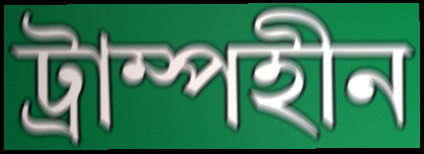
ট্রাম্পহীন